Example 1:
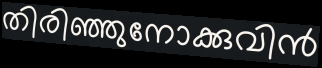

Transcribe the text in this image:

തിരിഞ്ഞുനോക്കുവിൻ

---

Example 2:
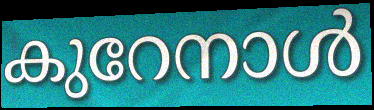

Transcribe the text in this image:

കുറേനാൾ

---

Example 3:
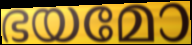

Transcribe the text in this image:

ഭയമോ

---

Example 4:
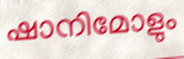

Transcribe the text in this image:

ഷാനിമോളും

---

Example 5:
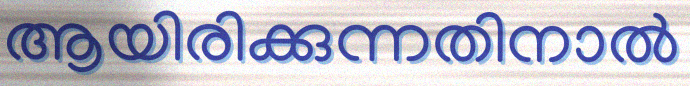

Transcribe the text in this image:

ആയിരിക്കുന്നതിനാൽ